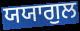
ਯਯਾਗੁਲ